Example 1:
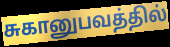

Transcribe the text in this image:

சுகானுபவத்தில்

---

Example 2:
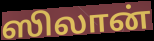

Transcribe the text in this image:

ஸிலான்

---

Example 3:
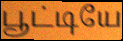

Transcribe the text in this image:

பூட்டியே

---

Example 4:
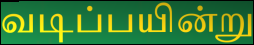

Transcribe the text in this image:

வடிப்பயின்று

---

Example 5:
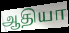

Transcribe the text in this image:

ஆதியா